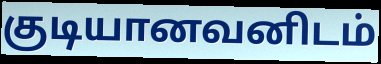
குடியானவனிடம்